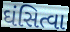
ઘંસિત્વા